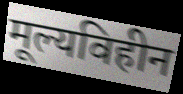
मूल्यविहीन